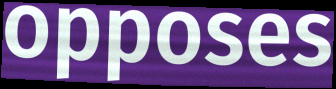
opposes